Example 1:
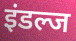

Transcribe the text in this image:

इंडल्ज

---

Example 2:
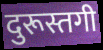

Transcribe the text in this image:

दुरूस्तगी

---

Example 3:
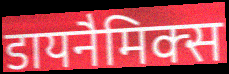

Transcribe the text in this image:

डायनैमिक्‍स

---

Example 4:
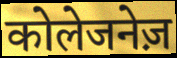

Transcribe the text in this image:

कोलेजनेज़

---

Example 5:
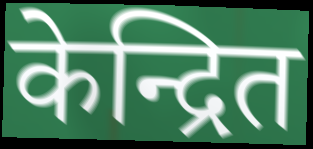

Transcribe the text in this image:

केन्द्रित